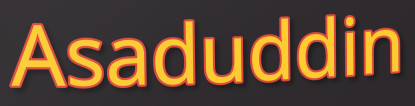
Asaduddin